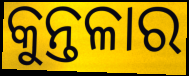
କୁନ୍ତଳାର